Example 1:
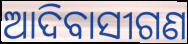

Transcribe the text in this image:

ଆଦିବାସୀଗଣ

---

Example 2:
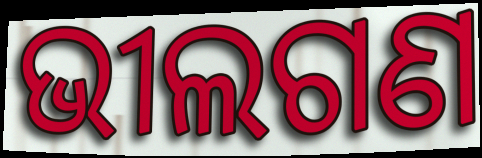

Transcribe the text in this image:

ଭୀଲଗଣ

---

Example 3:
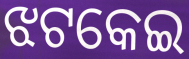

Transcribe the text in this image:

ଝଟକେଇ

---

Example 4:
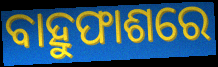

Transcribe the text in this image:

ବାହୁଫାଶରେ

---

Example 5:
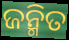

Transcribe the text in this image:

ଜନ୍ମିତ